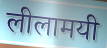
लीलामयी